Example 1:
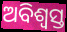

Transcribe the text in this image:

ଅବିଶ୍ୱସ୍ତ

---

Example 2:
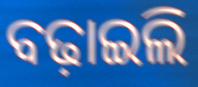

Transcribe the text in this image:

ବଢ଼ାଇଲି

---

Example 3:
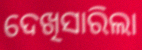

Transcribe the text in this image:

ଦେଖିସାରିଲା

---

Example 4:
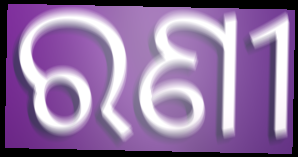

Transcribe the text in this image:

ରଣୀ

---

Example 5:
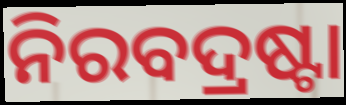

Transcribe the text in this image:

ନିରବଦ୍ରଷ୍ଟା